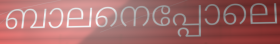
ബാലനെപ്പോലെ